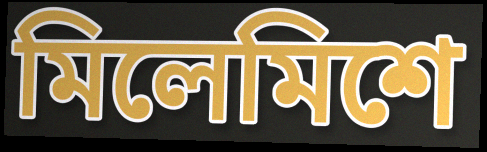
মিলেমিশে